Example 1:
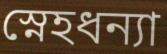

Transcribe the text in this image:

স্নেহধন্যা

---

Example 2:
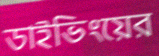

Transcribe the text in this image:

ডাইভিংয়ের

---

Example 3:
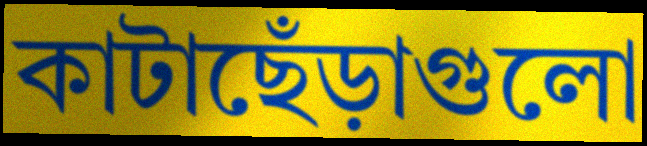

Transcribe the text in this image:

কাটাছেঁড়াগুলো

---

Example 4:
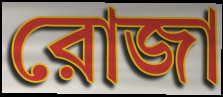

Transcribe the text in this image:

রোজা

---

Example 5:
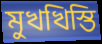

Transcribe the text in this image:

মুখখিস্তি